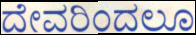
ದೇವರಿಂದಲೂ